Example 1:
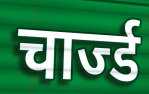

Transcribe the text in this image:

चार्ज्ड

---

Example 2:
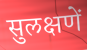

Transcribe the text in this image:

सुलक्षणें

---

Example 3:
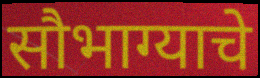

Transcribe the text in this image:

सौभाग्याचे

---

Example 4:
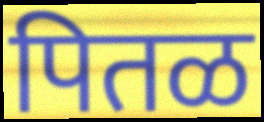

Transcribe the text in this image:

पितळ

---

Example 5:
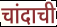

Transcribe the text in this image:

चांदाची